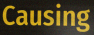
Causing